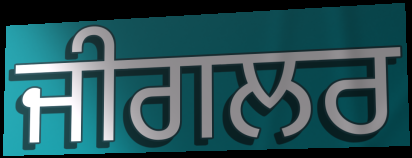
ਜੀਗਲਰ